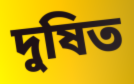
দুষিত